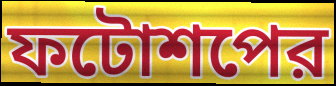
ফটোশপের